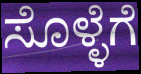
ಸೊಳ್ಳೆಗೆ